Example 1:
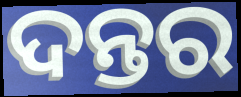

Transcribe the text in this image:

ଦନ୍ତର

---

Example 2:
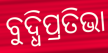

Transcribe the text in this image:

ବୁଦ୍ଧିପ୍ରତିଭା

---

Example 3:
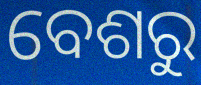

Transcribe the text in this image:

ବେଶରୁ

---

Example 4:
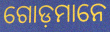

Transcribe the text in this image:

ଗୋଡ଼ମାନେ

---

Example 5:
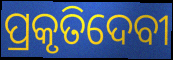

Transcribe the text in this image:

ପ୍ରକୃତିଦେବୀ